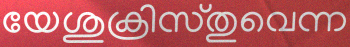
യേശുക്രിസ്തുവെന്ന